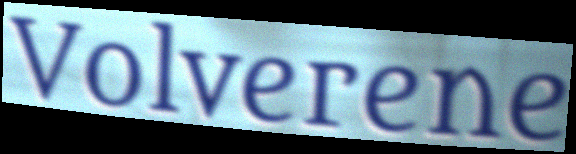
Volverene